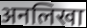
अनलिखा